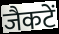
जैकटें